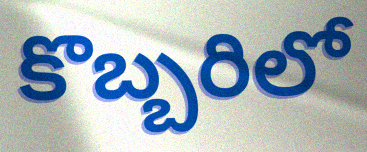
కొబ్బరిలో